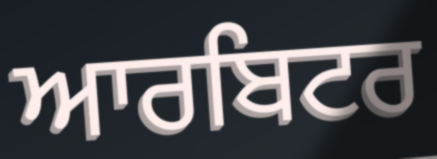
ਆਰਬਿਟਰ